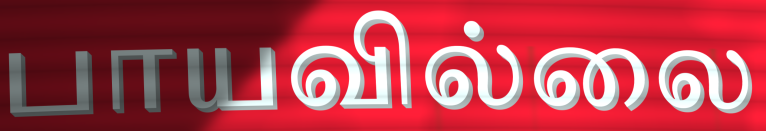
பாயவில்லை